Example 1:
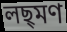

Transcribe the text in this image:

লছ্মণ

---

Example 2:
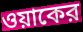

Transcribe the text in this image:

ওয়াকের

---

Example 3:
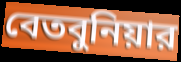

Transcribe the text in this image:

বেতবুনিয়ার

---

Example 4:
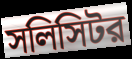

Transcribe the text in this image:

সলিসিটর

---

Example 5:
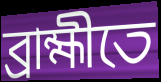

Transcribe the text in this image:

ব্রাহ্মীতে